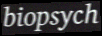
biopsych